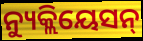
ନ୍ୟୁକ୍ଲିୟେସନ୍